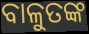
ବାଳୁତଙ୍କ